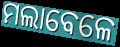
ମଲାବେଳେ